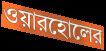
ওয়ারহোলের